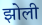
झोली